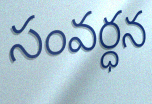
సంవర్ధన